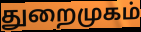
துறைமுகம்